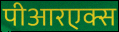
पीआरएक्स